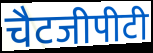
चैटजीपीटी